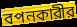
বপনকারীর